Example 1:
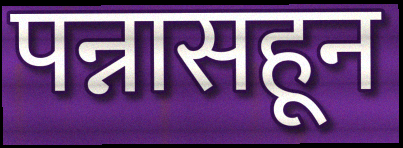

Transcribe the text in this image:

पन्नासहून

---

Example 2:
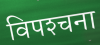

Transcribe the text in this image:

विपश्चना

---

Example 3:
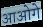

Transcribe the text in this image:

आओगे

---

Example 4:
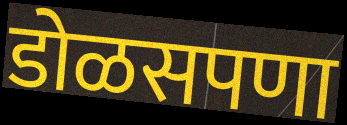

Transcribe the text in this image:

डोळसपणा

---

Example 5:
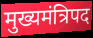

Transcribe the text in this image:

मुख्यमंत्रिपद